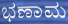
ಭಣಾಮ